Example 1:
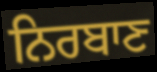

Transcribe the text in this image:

ਨਿਰਬਾਣ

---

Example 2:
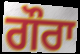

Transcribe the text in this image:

ਗੌਰਾ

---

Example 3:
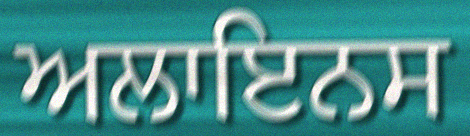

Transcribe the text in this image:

ਅਲਾਇਨਸ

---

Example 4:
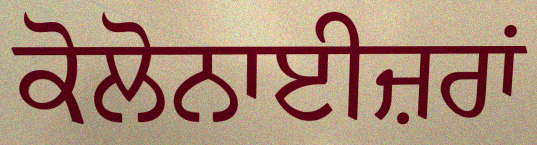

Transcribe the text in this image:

ਕੋਲੋਨਾਈਜ਼ਰਾਂ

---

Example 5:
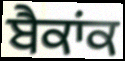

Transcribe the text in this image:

ਬੈਕਾਂਕ